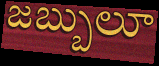
జబ్బులూ